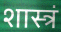
शास्त्रं